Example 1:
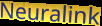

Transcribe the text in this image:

Neuralink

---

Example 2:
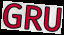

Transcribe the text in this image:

GRU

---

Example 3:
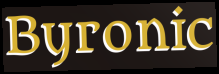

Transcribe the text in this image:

Byronic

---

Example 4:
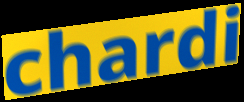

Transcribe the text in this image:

chardi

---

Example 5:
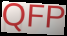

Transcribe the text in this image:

QFP